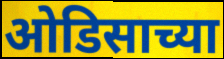
ओडिसाच्या